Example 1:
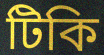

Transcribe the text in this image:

টিকি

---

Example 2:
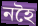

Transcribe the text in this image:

নহৈ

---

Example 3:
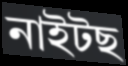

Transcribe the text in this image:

নাইটছ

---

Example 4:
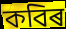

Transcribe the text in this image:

কবিৰ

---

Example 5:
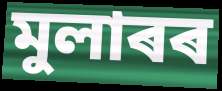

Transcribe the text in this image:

মুলাৰৰ